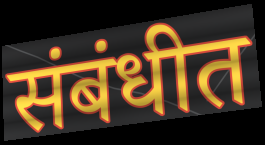
संबंधीत